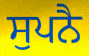
ਸੁਪਨੈ